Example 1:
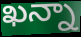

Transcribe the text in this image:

ఖన్నా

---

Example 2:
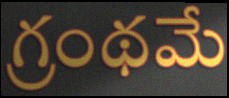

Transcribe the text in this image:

గ్రంథమే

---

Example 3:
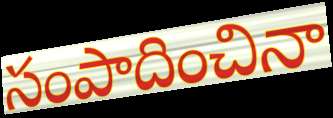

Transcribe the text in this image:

సంపాదించినా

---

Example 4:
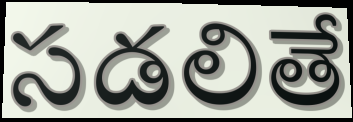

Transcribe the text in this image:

సడలితే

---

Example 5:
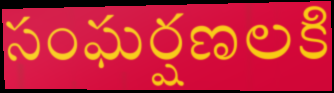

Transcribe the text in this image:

సంఘర్షణలకి